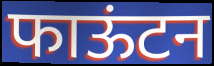
फाऊंटन